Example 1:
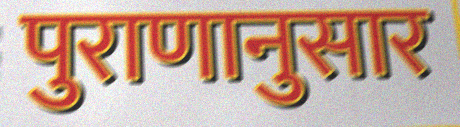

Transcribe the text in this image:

पुराणानुसार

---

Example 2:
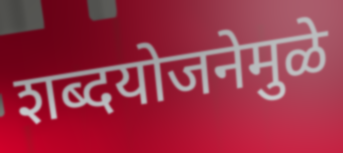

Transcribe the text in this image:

शब्दयोजनेमुळे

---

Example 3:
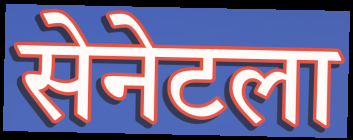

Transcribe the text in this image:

सेनेटला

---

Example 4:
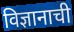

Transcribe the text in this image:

विज्ञानाची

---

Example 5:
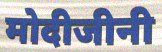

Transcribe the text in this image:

मोदीजीनी